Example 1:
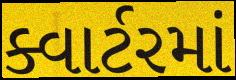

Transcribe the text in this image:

ક્વાર્ટરમાં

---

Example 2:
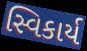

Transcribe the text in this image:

સ્વિકાર્ય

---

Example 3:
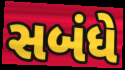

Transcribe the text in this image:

સબંધે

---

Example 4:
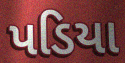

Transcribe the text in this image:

પડિયા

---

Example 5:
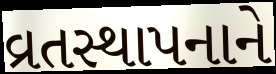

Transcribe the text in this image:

વ્રતસ્થાપનાને